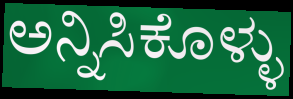
ಅನ್ನಿಸಿಕೊಳ್ಳು